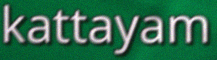
kattayam